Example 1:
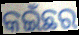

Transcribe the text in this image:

କଇଁଛର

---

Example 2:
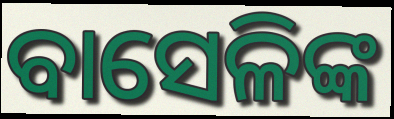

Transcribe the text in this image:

ବାସେଳିଙ୍କ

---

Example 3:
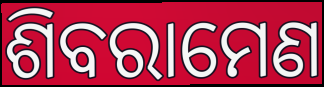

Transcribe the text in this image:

ଶିବରାମେଣ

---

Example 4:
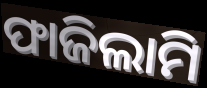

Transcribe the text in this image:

ଫାଜିଲାମି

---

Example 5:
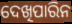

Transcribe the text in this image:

ଦେଖିପାରିନ